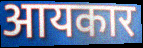
आयकार